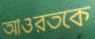
আওরতকে